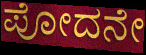
ಪೋದನೇ